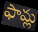
ఫామ్ల